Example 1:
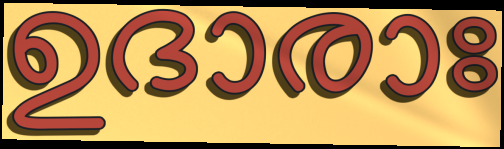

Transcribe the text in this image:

ഉദാരാഃ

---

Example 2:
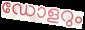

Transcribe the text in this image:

ഡോളറും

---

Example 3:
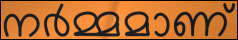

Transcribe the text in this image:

നർമ്മമാണ്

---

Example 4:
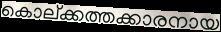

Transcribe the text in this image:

കൊല്ക്കത്തക്കാരനായ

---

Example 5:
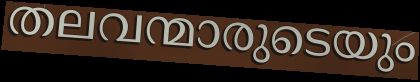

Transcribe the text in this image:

തലവന്മാരുടെയും